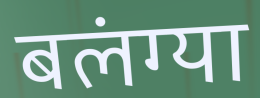
बलंग्या